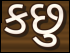
કછુ